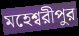
মহেশ্বরীপুর